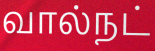
வால்நட்